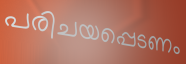
പരിചയപ്പെടണം